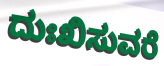
ದುಃಖಿಸುವರೆ